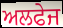
ਅਲਫੇਜ